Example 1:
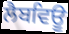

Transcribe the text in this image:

ਲੈਬਵਿਊ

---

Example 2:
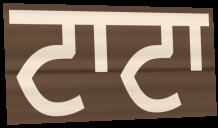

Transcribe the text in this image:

ਟਾਟਾ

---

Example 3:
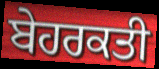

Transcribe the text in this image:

ਬੇਹਰਕਤੀ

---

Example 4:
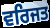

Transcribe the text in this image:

ਵਰਿਜਤ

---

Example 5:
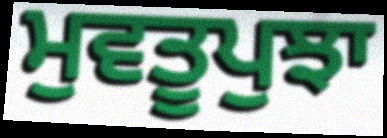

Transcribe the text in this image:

ਮੁਵਤੂਪੁਝਾ